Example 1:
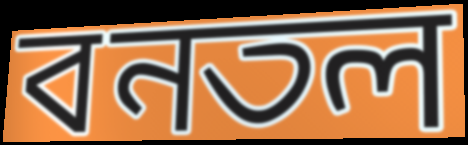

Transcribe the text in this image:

বনতল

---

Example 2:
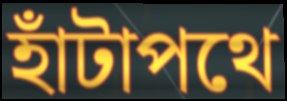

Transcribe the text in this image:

হাঁটাপথে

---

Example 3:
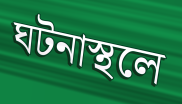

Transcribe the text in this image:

ঘটনাস্থলে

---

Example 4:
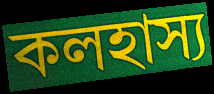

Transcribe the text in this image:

কলহাস্য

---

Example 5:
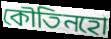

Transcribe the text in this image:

কৌতিনহো